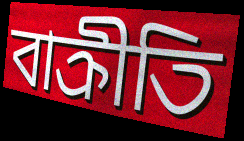
বাক্রীতি